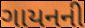
ગાયનની